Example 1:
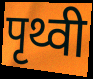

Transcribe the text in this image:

पृथ्वी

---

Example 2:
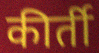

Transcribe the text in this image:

कीर्ती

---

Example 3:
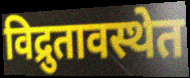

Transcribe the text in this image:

विद्रुतावस्थेत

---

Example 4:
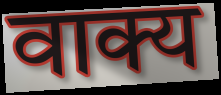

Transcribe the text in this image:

वाक्य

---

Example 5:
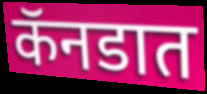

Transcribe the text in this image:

कॅनडात